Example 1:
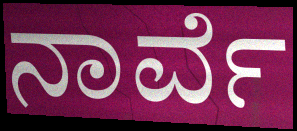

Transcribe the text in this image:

ನಾರ್ವೆ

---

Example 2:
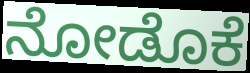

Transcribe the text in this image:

ನೋಡೊಕೆ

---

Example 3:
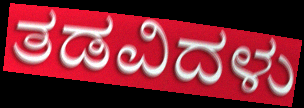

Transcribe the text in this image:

ತಡವಿದಳು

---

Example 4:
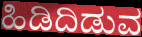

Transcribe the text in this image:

ಹಿಡಿದಿಡುವ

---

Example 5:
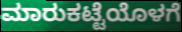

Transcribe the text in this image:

ಮಾರುಕಟ್ಟೆಯೊಳಗೆ